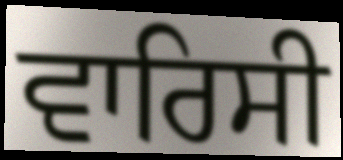
ਵਾਰਿਸੀ